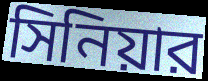
সিনিয়ার